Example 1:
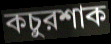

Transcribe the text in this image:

কচুরশাক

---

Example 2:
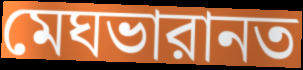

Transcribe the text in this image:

মেঘভারানত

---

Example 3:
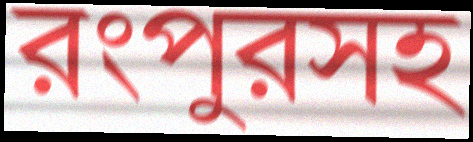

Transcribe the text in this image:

রংপুরসহ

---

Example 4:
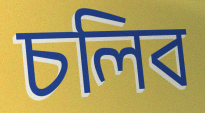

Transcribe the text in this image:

চলিব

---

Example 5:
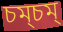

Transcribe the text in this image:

চম্চম্